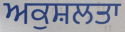
ਅਕੁਸ਼ਲਤਾ